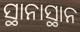
ସ୍ଥାନାସ୍ଥାନ